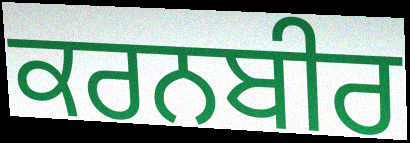
ਕਰਨਬੀਰ